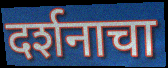
दर्शनाचा